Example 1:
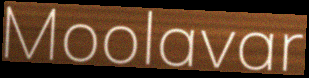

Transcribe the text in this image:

Moolavar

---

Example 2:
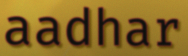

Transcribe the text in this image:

aadhar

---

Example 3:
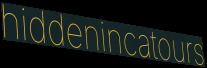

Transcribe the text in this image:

hiddenincatours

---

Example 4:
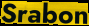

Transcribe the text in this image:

Srabon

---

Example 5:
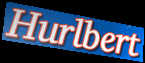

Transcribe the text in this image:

Hurlbert